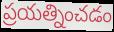
ప్రయత్నించడం